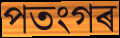
পতংগৰ